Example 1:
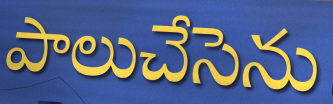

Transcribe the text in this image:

పాలుచేసెను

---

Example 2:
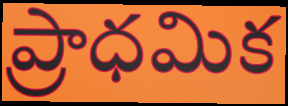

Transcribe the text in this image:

ప్రాధమిక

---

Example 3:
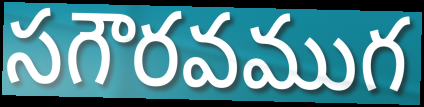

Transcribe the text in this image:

సగౌరవముగ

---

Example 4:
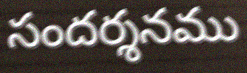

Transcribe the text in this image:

సందర్శనము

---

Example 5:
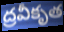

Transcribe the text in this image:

ద్రవీకృత